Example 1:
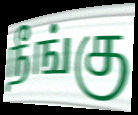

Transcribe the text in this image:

நீங்கு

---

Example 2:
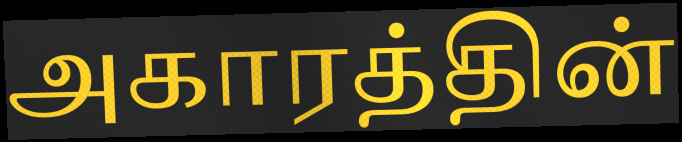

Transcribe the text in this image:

அகாரத்தின்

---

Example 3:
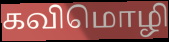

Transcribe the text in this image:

கவிமொழி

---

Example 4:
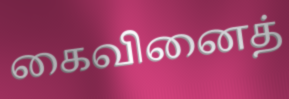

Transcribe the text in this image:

கைவினைத்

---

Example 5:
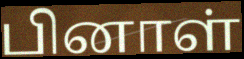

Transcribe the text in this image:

பினாள்